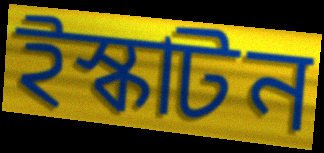
ইস্কাটন